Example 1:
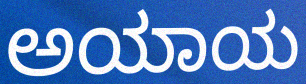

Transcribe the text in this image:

ಅಯಾಯ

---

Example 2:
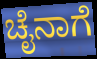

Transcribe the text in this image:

ಚೈನಾಗೆ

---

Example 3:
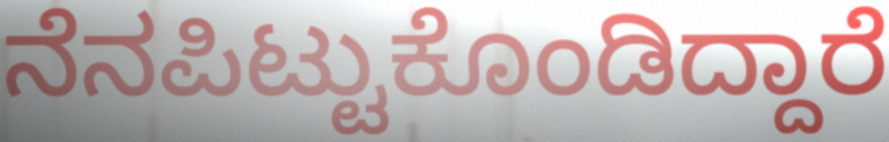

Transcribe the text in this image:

ನೆನಪಿಟ್ಟುಕೊಂಡಿದ್ದಾರೆ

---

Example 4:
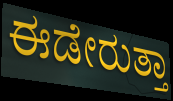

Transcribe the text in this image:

ಈಡೇರುತ್ತಾ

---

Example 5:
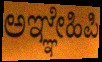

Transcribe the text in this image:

ಅಞ್ಞೇಹಿಪಿ